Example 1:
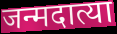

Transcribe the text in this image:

जन्मदात्या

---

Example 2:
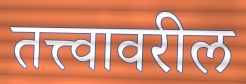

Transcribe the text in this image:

तत्त्वावरील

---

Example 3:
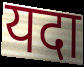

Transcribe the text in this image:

यदा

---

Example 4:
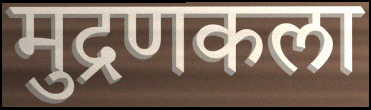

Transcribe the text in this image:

मुद्रणकला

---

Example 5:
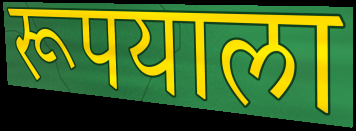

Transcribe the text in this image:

रूपयाला